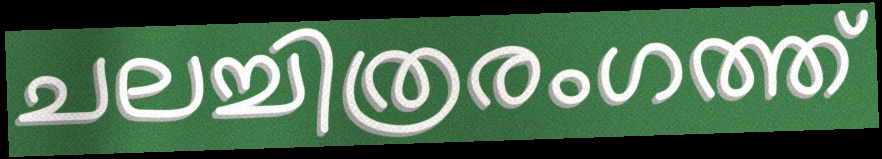
ചലച്ചിത്രരംഗത്ത്